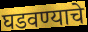
घडवण्याचे